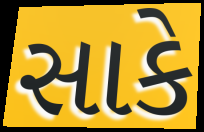
સાકે